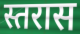
स्तरास